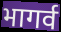
भागर्व